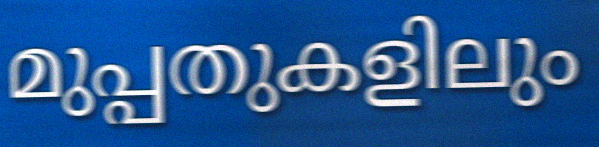
മുപ്പതുകളിലും